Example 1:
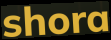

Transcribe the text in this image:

shora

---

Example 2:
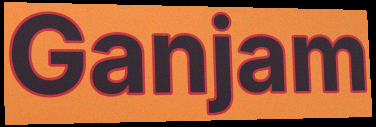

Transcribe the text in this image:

Ganjam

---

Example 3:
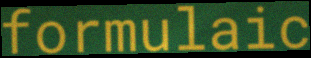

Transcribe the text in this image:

formulaic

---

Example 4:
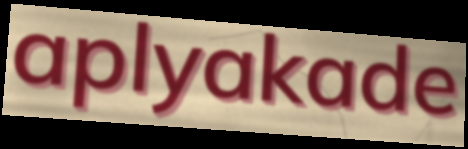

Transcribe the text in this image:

aplyakade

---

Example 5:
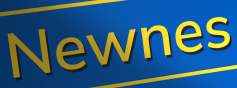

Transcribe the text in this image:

Newnes